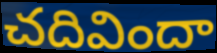
చదివిందా